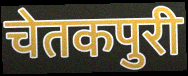
चेतकपुरी